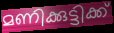
മണിക്കുട്ടിക്ക്